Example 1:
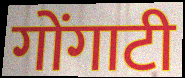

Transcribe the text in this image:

गोंगाटी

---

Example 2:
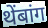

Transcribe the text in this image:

थेंबांग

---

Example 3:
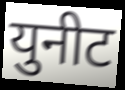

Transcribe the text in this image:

युनीट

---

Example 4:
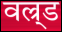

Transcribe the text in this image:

वल्र्ड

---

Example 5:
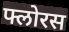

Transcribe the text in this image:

फ्लोरस